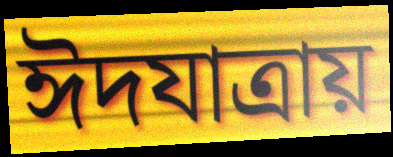
ঈদযাত্রায়